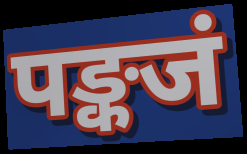
पङ्कजं